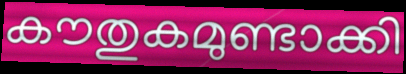
കൗതുകമുണ്ടാക്കി